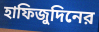
হাফিজুদিনের